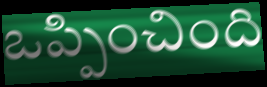
ఒప్పించింది